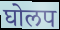
घोलप